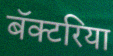
बॅक्टरिया